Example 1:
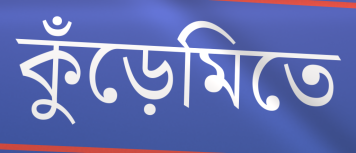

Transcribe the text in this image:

কুঁড়েমিতে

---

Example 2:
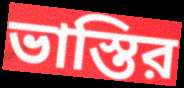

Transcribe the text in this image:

ভাস্তির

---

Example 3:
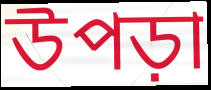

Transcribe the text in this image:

উপড়া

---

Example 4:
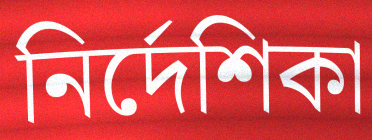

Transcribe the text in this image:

নির্দেশিকা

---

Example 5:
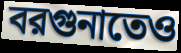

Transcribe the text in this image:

বরগুনাতেও